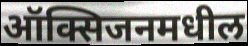
ऑक्सिजनमधील